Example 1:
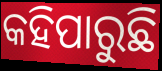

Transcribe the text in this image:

କହିପାରୁଛି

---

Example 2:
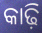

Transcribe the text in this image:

କାଢ଼ି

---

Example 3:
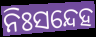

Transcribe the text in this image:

ନିଃସନ୍ଦେହ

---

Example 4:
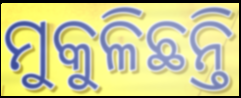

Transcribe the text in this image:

ମୁକୁଳିଛନ୍ତି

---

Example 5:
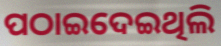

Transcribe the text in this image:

ପଠାଇଦେଇଥିଲି